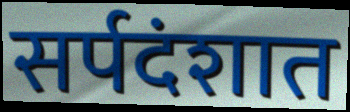
सर्पदंशात